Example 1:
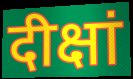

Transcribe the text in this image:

दीक्षां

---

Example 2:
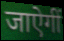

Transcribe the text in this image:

जाऐगीं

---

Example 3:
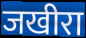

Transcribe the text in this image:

जखीरा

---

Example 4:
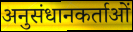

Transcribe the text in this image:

अनुसंधानकर्ताओं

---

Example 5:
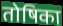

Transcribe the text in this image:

तोषिका